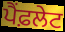
ਪੈਂਫ਼ਲੇਟ